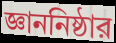
জ্ঞাননিষ্ঠার